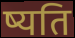
ष्यति